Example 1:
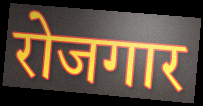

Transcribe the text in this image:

रोजगार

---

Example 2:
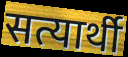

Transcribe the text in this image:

सत्यार्थी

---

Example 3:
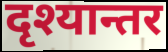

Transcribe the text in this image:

दृश्यान्तर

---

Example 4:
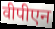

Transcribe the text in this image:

वीपीएन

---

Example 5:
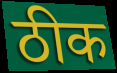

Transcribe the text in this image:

ठीक